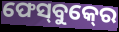
ଫେସ୍‍ବୁକ୍‍ରେ